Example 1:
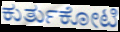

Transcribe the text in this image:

ಕುರ್ತುಕೋಟಿ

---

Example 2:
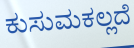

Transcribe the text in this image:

ಕುಸುಮಕಲ್ಲದೆ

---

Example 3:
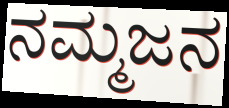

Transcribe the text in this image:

ನಮ್ಮಜನ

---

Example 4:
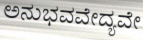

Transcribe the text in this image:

ಅನುಭವವೇದ್ಯವೇ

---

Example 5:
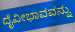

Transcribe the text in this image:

ದೈವೀಭಾವವನ್ನು